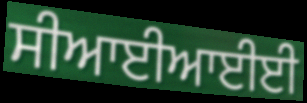
ਸੀਆਈਆਈਈ